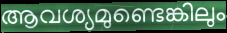
ആവശ്യമുണ്ടെങ്കിലും